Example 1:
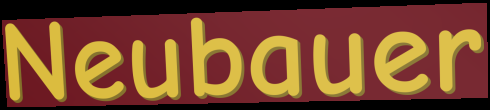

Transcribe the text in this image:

Neubauer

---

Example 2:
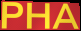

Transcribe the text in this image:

PHA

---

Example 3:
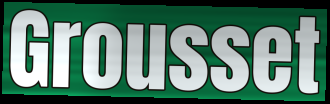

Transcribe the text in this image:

Grousset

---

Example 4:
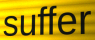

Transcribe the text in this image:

suffer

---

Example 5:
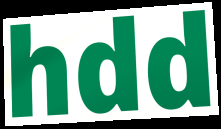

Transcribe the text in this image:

hdd